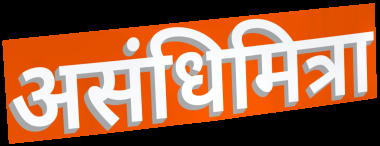
असंधिमित्रा